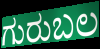
ಗುರುಬಲ